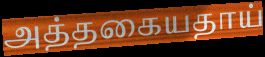
அத்தகையதாய்